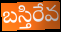
బస్తిరేవ